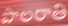
పాలరాతి